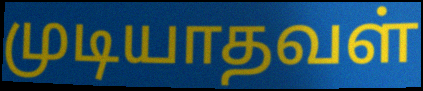
முடியாதவள்